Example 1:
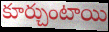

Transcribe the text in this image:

కూర్చుంటాయి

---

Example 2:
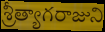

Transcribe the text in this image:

శ్రీత్యాగరాజుని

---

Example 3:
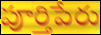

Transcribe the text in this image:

పూర్తిపేరు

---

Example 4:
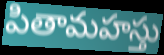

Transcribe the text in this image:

పితామహస్తు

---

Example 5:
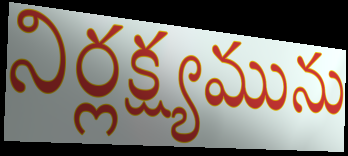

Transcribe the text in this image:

నిర్లక్ష్యమును